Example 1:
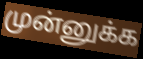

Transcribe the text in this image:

முன்னுக்க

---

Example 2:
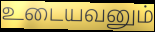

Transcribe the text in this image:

உடையவனும்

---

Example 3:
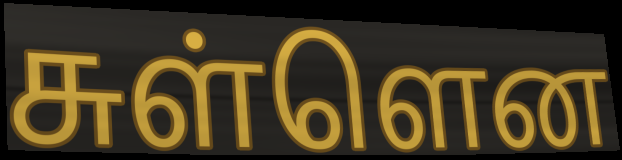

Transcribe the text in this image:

சுள்ளென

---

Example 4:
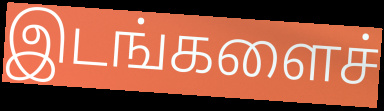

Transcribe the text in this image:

இடங்களைச்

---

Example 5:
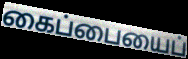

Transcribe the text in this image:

கைப்பையைப்